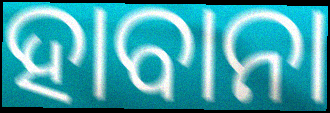
ହାବାନା